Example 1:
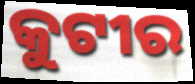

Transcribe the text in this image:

କୁଟୀର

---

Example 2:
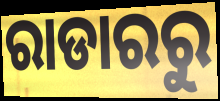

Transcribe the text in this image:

ରାଡାରରୁ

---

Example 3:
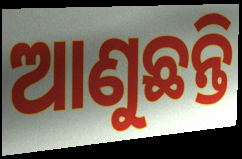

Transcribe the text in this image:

ଆଣୁଛନ୍ତି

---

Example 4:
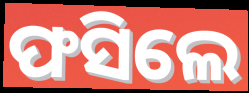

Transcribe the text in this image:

ଫସିଲେ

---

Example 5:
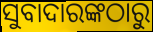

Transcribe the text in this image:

ସୁବାଦାରଙ୍କଠାରୁ